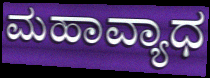
ಮಹಾವ್ಯಾಧ